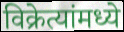
विक्रेत्यांमध्ये